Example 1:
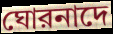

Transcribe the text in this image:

ঘোরনাদে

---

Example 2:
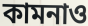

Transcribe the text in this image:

কামনাও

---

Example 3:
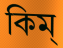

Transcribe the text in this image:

কিম্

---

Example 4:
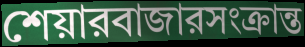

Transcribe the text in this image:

শেয়ারবাজারসংক্রান্ত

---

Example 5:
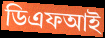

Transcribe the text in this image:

ডিএফআই